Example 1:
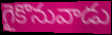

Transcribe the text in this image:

గైకొనువాడు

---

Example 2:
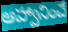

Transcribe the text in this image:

ఆహ్వానించే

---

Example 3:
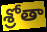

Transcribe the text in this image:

శ్రోతా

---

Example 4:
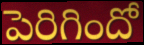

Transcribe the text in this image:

పెరిగిందో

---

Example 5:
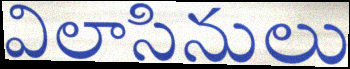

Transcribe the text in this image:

విలాసినులు